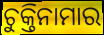
ଚୁକ୍ତିନାମାର